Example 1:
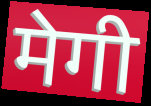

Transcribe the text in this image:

मेगी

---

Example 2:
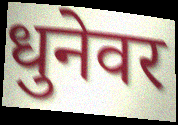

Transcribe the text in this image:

धुनेवर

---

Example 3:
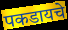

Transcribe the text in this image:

पकडायचे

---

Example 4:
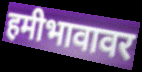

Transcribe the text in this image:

हमीभावावर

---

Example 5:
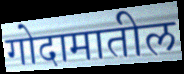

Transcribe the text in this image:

गोदामातील